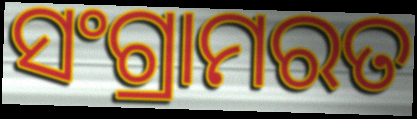
ସଂଗ୍ରାମରତ